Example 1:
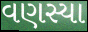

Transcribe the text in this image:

વણસ્યા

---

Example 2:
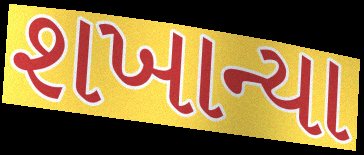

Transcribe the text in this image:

શખાન્યા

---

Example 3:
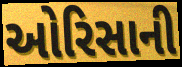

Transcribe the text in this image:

ઓરિસાની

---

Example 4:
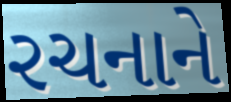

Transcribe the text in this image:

રચનાને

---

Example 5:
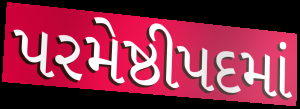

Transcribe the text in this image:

પરમેષ્ઠીપદમાં